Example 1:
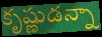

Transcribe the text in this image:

కృష్ణుడన్నా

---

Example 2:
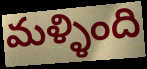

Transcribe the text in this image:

మళ్ళింది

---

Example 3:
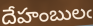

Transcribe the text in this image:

దేహంబులఁ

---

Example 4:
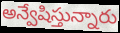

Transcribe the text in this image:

అన్వేషిస్తున్నారు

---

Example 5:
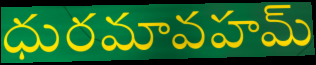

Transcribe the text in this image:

ధురమావహమ్